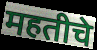
महतीचे